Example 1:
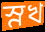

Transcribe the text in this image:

স্নখ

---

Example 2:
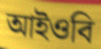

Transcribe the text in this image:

আইওবি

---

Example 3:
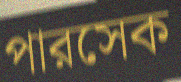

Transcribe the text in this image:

পারসেক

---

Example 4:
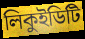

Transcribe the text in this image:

লিকুইডিটি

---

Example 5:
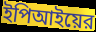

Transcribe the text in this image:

ইপিআইয়ের